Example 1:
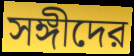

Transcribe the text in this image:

সঙ্গীদের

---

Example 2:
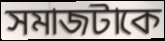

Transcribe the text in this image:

সমাজটাকে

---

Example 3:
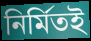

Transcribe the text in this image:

নির্মিতই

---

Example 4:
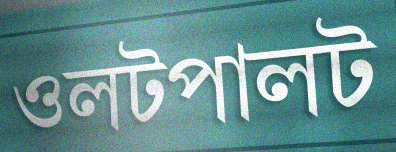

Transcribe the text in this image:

ওলটপালট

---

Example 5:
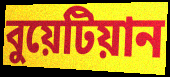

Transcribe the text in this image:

বুয়েটিয়ান